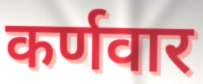
कर्णवार